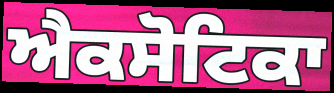
ਐਕਸੋਟਿਕਾ